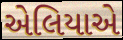
એલિયાએ